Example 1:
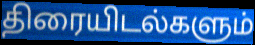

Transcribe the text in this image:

திரையிடல்களும்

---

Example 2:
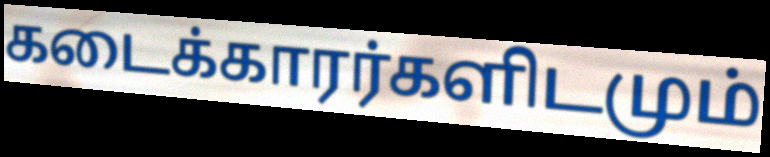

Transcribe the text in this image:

கடைக்காரர்களிடமும்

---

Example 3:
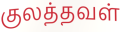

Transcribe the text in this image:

குலத்தவள்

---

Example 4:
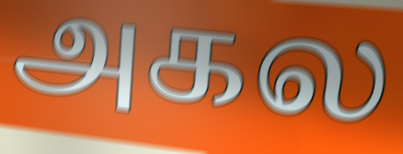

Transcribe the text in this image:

அகல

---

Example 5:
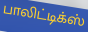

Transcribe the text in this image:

பாலிட்டிக்ஸ்